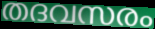
തദവസരം